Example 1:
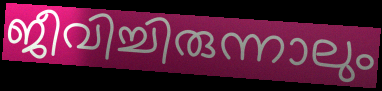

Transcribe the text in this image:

ജീവിച്ചിരുന്നാലും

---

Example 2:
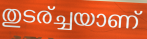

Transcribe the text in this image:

തുടര്ച്ചയാണ്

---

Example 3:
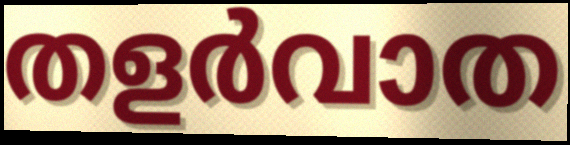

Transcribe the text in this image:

തളർവാത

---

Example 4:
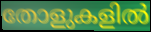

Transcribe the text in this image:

തോളുകളിൽ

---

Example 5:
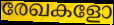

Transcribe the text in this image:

രേഖകളോ